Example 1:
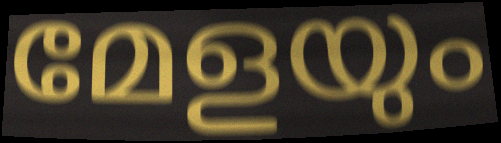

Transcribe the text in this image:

മേളയും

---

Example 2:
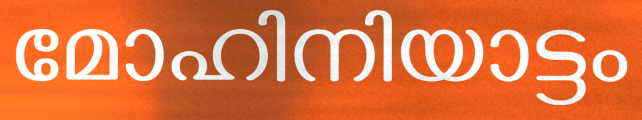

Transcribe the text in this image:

മോഹിനിയാട്ടം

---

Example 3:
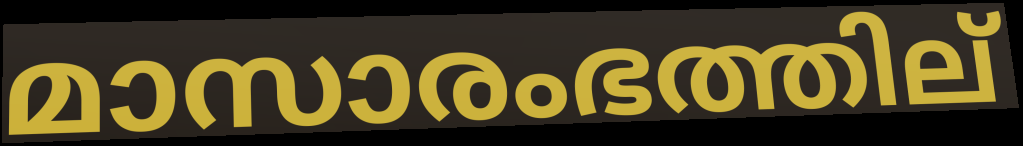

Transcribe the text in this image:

മാസാരംഭത്തില്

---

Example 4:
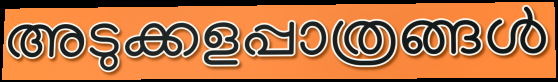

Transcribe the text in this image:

അടുക്കളപ്പാത്രങ്ങൾ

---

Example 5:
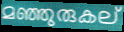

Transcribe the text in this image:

മഞ്ഞുരുകല്